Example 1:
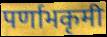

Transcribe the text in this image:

पर्णाभकृमी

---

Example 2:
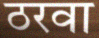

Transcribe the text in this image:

ठरवा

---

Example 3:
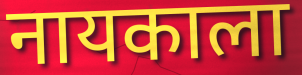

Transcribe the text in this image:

नायकाला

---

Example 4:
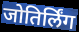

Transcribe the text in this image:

जोतिर्लिंग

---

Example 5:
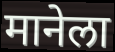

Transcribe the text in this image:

मानेला